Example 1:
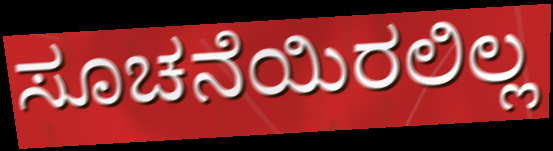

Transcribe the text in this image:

ಸೂಚನೆಯಿರಲಿಲ್ಲ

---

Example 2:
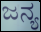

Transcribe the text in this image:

ಜನ್ಯ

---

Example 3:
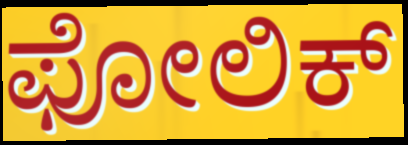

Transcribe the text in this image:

ಫೋಲಿಕ್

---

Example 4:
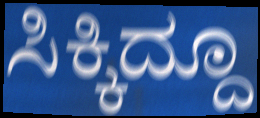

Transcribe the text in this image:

ಸಿಕ್ಕಿದ್ದೂ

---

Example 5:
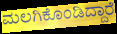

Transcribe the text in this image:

ಮಲಗಿಕೊಂಡಿದ್ದಾರೆ